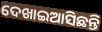
ଦେଖାଇଆସିଛନ୍ତି